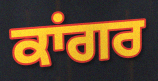
ਕਾਂਗਰ